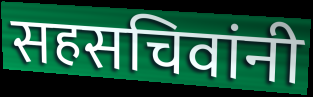
सहसचिवांनी